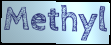
Methyl